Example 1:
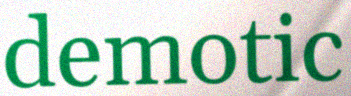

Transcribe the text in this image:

demotic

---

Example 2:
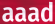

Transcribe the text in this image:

aaad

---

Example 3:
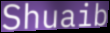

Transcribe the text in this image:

Shuaib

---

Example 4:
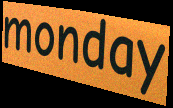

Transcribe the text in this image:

monday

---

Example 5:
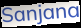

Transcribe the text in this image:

Sanjana